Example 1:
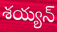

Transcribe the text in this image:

శయ్యన్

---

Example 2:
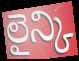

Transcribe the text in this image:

లైన్కి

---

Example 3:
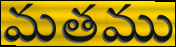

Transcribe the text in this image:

మతము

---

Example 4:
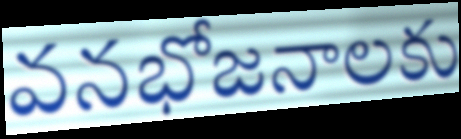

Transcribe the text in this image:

వనభోజనాలకు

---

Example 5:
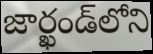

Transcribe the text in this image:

జార్ఖండ్‌లోని